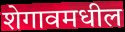
शेगावमधील